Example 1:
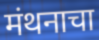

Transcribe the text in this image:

मंथनाचा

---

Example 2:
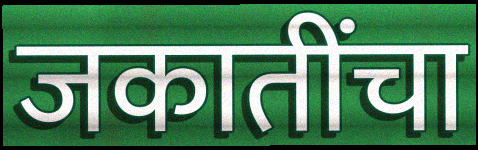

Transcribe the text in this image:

जकातींचा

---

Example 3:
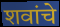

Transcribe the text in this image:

शवांचे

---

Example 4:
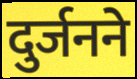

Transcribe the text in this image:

दुर्जनने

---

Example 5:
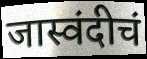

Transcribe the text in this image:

जास्वंदीचं